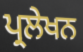
ਪ੍ਰਲੇਖਨ